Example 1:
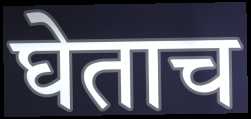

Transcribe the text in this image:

घेताच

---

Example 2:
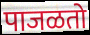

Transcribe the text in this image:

पाजळतो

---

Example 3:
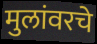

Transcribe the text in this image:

मुलांवरचे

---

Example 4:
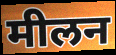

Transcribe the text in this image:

मीलन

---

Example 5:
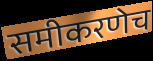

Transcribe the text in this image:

समीकरणेच